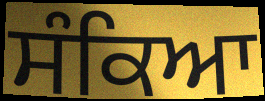
ਸੰਕਿਆ